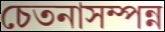
চেতনাসম্পন্ন